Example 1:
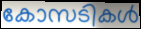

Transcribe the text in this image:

കോസടികൾ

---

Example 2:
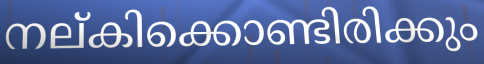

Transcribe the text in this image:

നല്കിക്കൊണ്ടിരിക്കും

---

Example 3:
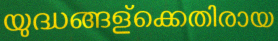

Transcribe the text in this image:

യുദ്ധങ്ങള്ക്കെതിരായ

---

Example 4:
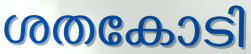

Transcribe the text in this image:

ശതകോടി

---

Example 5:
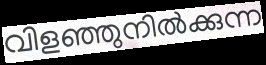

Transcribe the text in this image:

വിളഞ്ഞുനിൽക്കുന്ന